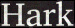
Hark